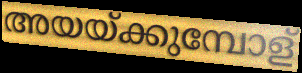
അയയ്ക്കുമ്പോള്